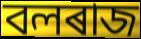
বলৰাজ